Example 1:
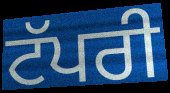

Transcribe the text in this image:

ਟੱਪਰੀ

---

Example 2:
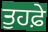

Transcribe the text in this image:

ਤੁਹਫ਼ੇ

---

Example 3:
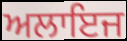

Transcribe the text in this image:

ਅਲਾਇਜ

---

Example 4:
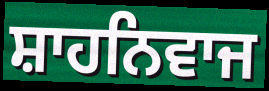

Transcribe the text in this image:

ਸ਼ਾਹਨਿਵਾਜ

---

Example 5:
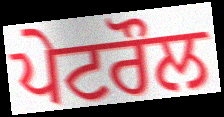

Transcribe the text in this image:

ਪੇਟਰੌਲ